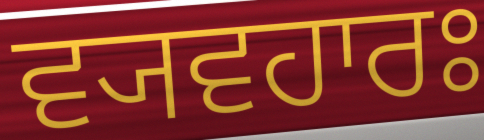
ਵ੍ਯਵਹਾਰਃ